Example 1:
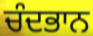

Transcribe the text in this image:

ਚੰਦਭਾਨ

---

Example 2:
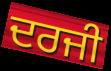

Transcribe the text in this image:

ਦਰਜੀ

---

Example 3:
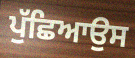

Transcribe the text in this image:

ਪੁੱਛਿਆਉਸ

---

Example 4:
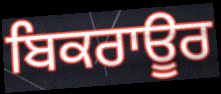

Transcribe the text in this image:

ਬਿਕਰਾਊਰ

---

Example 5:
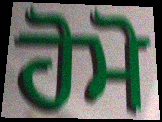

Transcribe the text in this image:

ਹੋਮੋ